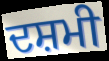
ਦਸ਼ਮੀ